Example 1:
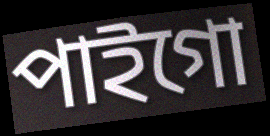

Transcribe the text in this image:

পাইগো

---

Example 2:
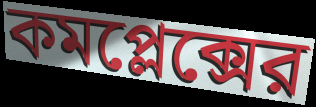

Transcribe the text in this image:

কমপ্লেক্সের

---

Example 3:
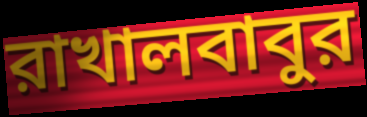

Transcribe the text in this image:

রাখালবাবুর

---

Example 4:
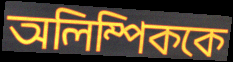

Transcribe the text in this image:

অলিম্পিককে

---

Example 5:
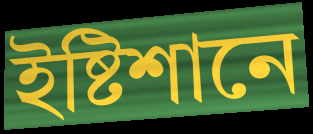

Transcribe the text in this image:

ইষ্টিশানে